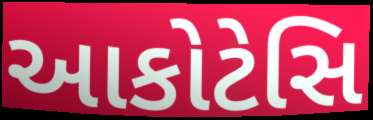
આકોટેસિ